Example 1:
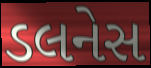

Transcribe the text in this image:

ડલનેસ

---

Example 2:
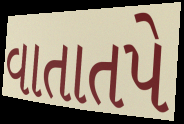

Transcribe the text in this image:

વાતાતપે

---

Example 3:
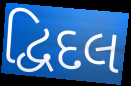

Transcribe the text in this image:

દ્વિદલ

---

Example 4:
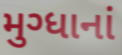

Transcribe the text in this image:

મુગ્ધાનાં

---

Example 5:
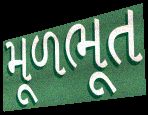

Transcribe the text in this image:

મૂળભૂત